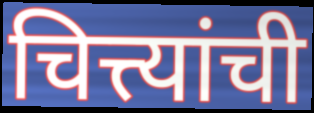
चित्त्यांची